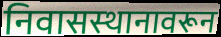
निवासस्थानावरून